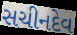
સચીનદેવ